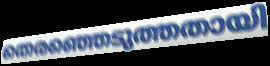
തെരഞ്ഞെടുത്തതായി